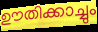
ഊതിക്കാച്ചും